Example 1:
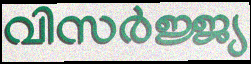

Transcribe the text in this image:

വിസർജ്ജ്യ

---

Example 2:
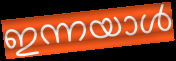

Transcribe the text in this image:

ഇന്നയാൾ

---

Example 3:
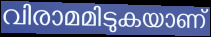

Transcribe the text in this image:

വിരാമമിടുകയാണ്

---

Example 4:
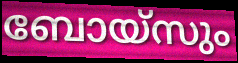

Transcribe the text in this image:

ബോയ്സും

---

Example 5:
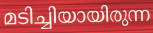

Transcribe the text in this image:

മടിച്ചിയായിരുന്ന